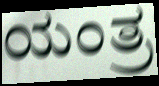
ಯಂತ್ರ